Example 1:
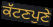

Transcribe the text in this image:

ਕੱਟਣਪੁਣੇ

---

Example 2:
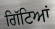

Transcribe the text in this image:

ਗਿੱਟਿਆਂ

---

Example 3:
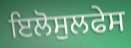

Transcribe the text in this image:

ਇਲੋਸੁਲਫੇਸ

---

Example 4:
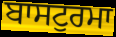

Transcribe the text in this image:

ਬਾਸਟੁਰਮਾ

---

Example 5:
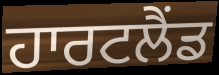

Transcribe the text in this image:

ਹਾਰਟਲੈਂਡ